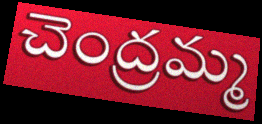
చెంద్రమ్మ